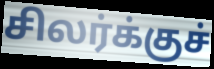
சிலர்க்குச்